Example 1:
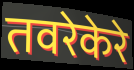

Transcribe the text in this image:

तवरेकेरे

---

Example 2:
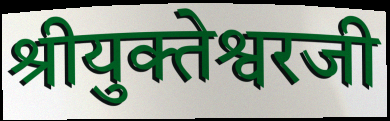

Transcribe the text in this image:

श्रीयुक्तेश्वरजी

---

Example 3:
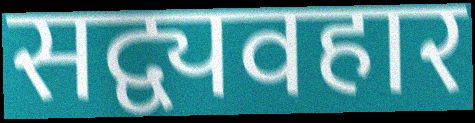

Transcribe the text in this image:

सद्व्यवहार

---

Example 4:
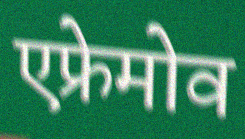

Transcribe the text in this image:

एफ्रेमोव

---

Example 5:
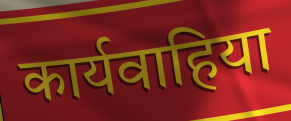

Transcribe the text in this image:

कार्यवाहिया